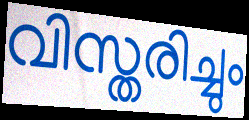
വിസ്തരിച്ചും